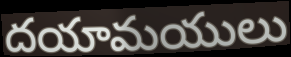
దయామయులు